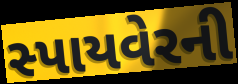
સ્પાયવેરની